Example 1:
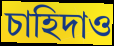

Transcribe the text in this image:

চাহিদাও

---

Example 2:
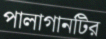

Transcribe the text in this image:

পালাগানটির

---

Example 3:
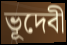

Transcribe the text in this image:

ভূদেবী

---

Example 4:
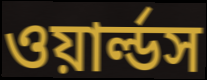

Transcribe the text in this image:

ওয়ার্ল্ডস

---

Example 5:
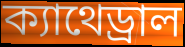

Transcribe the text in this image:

ক্যাথেড্রাল